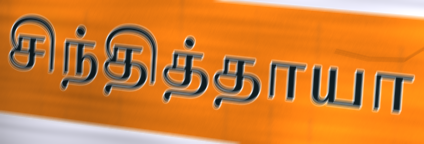
சிந்தித்தாயா